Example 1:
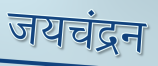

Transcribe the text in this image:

जयचंद्रन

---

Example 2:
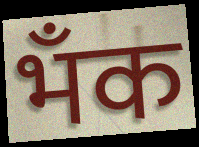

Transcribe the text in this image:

भँक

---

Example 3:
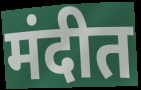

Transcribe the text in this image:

मंदीत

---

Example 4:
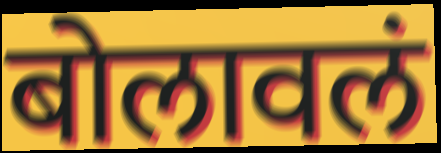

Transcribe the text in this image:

बोलावलं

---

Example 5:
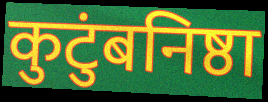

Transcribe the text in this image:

कुटुंबनिष्ठा